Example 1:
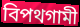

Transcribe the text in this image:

বিপথগামী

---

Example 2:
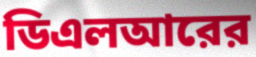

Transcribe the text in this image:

ডিএলআরের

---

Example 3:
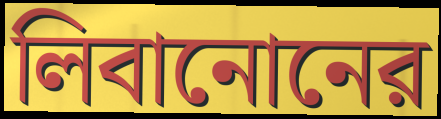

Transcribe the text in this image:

লিবানোনের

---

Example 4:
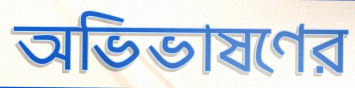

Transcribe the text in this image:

অভিভাষণের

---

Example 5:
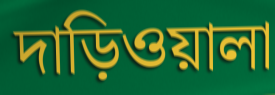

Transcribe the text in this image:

দাড়িওয়ালা